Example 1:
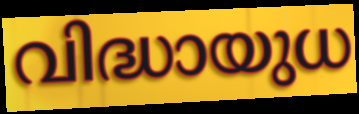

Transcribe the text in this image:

വിദ്ധായുധ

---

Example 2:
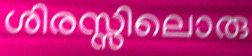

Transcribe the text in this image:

ശിരസ്സിലൊരു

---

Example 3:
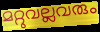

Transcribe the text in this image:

മറ്റുവല്ലവരും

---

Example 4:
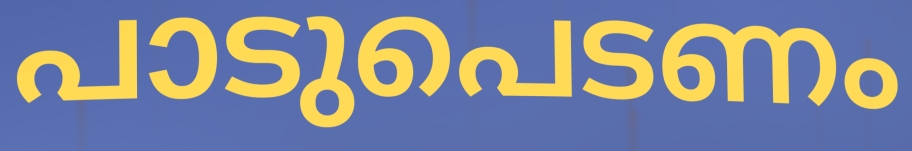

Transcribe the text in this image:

പാടുപെടണം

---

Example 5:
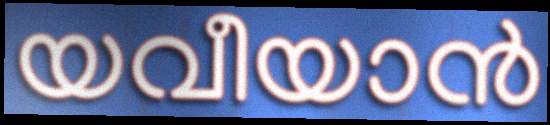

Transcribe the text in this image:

യവീയാൻ